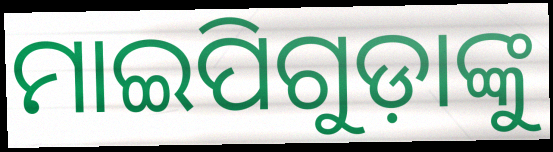
ମାଇପିଗୁଡ଼ାଙ୍କୁ